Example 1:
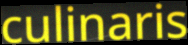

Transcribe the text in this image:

culinaris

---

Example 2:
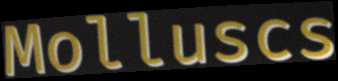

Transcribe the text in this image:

Molluscs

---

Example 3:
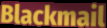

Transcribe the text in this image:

Blackmail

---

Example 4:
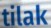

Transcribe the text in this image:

tilak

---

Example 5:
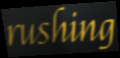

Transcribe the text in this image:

rushing